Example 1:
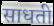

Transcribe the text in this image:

साधती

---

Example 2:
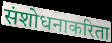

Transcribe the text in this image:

संशोधनाकरिता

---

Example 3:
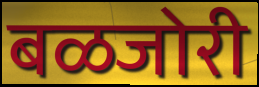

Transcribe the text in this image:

बळजोरी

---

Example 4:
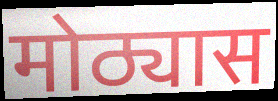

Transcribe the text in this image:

मोठ्यास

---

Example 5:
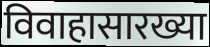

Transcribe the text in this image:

विवाहासारख्या